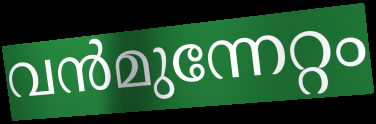
വൻമുന്നേറ്റം